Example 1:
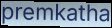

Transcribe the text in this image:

premkatha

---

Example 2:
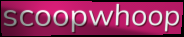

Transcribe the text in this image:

scoopwhoop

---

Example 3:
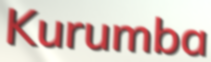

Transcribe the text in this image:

Kurumba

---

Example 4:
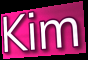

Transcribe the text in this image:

Kim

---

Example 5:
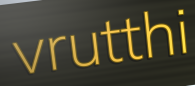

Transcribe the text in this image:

vrutthi